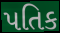
પતિક